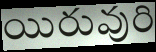
యిరువురి